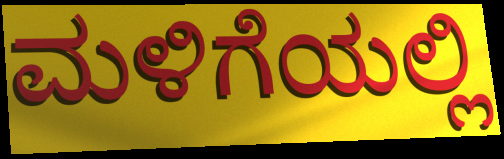
ಮಳಿಗೆಯಲ್ಲಿ